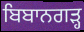
ਬਿਬਾਨਗੜ੍ਹ